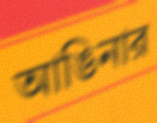
আঙিনার